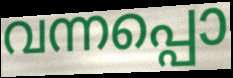
വന്നപ്പൊ